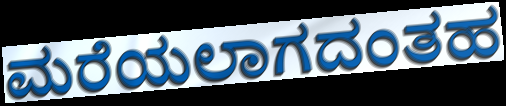
ಮರೆಯಲಾಗದಂತಹ